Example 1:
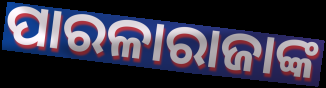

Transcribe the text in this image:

ପାରଳାରାଜାଙ୍କ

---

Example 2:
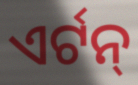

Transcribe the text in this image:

ଏର୍ଟନ୍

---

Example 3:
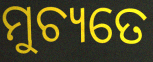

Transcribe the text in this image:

ମୁଚ୍ୟତେ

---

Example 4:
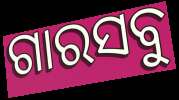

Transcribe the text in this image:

ଗାରସବୁ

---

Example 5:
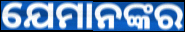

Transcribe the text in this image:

ଯେମାନଙ୍କର